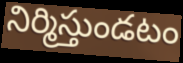
నిర్మిస్తుండటం